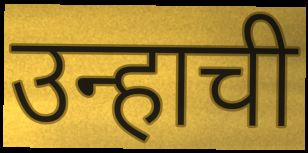
उन्हाची